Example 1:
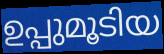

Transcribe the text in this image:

ഉപ്പുമൂടിയ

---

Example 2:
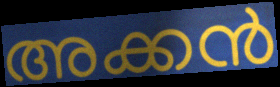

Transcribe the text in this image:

അക്കൻ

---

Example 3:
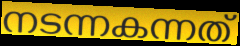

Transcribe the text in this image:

നടന്നകന്നത്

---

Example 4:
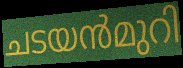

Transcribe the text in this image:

ചടയൻമുറി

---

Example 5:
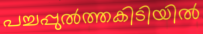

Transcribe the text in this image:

പച്ചപ്പുൽത്തകിടിയിൽ